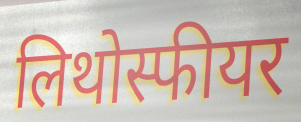
लिथोस्फीयर